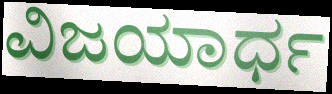
ವಿಜಯಾರ್ಧ